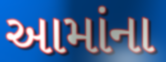
આમાંના